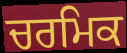
ਚਰਮਿਕ